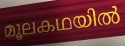
മൂലകഥയിൽ